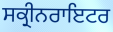
ਸਕ੍ਰੀਨਰਾਇਟਰ